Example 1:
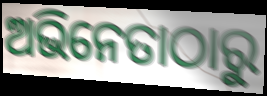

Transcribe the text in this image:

ଅଭିନେତାଠାରୁ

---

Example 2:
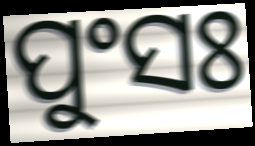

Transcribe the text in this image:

ପୁଂସଃ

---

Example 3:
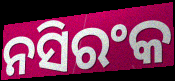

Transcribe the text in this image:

ନସିରଂକ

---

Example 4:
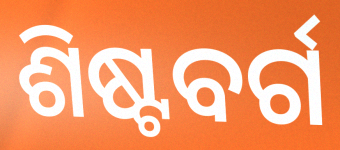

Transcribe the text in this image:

ଶିଷ୍ଟବର୍ଗ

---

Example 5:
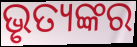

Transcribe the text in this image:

ଭୃତ୍ୟଙ୍କର